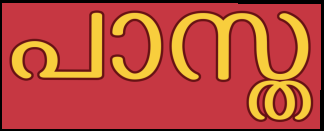
പാസ്ത